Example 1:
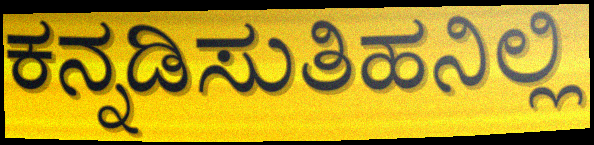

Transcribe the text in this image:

ಕನ್ನಡಿಸುತಿಹನಿಲ್ಲಿ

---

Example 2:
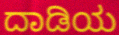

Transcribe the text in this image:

ದಾಡಿಯ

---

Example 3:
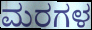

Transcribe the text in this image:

ಮರಗಳ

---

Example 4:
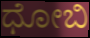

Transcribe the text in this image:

ಧೋಬಿ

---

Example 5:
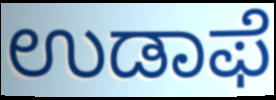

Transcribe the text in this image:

ಉಡಾಫೆ